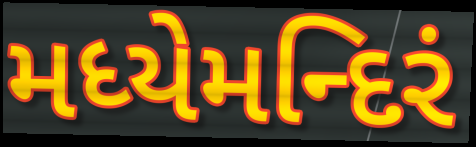
મધ્યેમન્દિરં